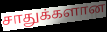
சாதுக்களான